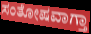
ಸಂತೋಷವಾಗ್ತಾ